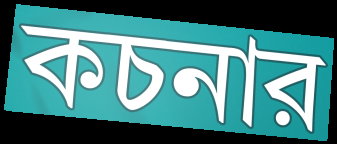
কচনার